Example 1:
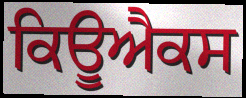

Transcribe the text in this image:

ਕਿਊਐਕਸ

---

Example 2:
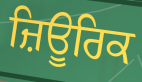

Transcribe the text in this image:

ਜ਼ਿਊਰਿਕ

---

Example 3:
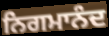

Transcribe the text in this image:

ਨਿਗਮਾਨੰਦ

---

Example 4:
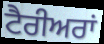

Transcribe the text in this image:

ਟੈਰੀਅਰਾਂ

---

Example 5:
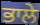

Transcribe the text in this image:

ਭਾਲੇ